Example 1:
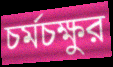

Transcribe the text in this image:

চর্মচক্ষুর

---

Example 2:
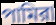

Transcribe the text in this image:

পামিরা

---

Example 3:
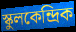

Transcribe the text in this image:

স্কুলকেন্দ্রিক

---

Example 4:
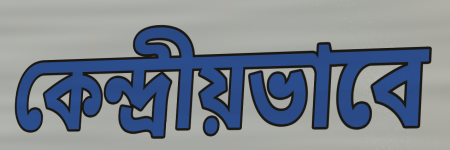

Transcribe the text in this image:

কেন্দ্রীয়ভাবে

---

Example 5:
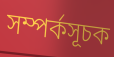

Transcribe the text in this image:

সম্পর্কসূচক